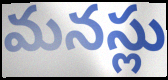
మనస్లు